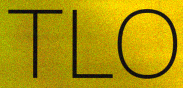
TLO